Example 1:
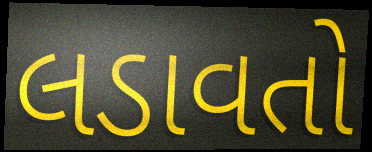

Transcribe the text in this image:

લડાવતો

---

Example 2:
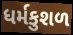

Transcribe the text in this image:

ધર્મકુશળ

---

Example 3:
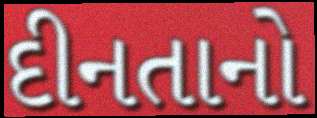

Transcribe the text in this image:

દીનતાનો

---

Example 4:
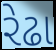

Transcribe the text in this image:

રેઢા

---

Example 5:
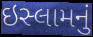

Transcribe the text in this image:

ઇસ્લામનું